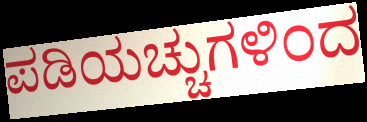
ಪಡಿಯಚ್ಚುಗಳಿಂದ